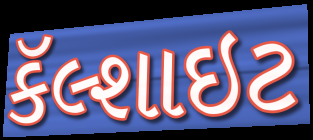
કૅલ્શાઇટ